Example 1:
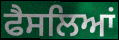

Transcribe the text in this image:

ਫੈਸਲਿਆਂ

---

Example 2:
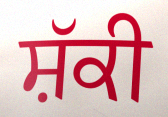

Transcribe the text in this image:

ਸ਼ੱਕੀ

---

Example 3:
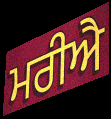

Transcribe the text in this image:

ਮਰੀਐ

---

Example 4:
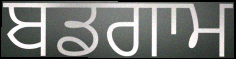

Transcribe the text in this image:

ਬਡਗਾਮ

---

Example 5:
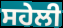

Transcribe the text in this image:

ਸਹੇਲੀ